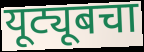
यूट्यूबचा